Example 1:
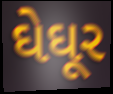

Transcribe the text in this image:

ઘેઘૂર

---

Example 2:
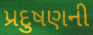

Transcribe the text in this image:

પ્રદુષણની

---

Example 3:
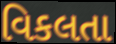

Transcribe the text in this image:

વિકલતા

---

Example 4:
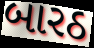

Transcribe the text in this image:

બારઠ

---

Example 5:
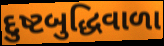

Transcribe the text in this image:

દુષ્ટબુદ્ધિવાળા